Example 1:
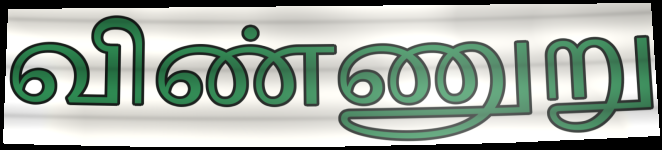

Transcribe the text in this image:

விண்ணுறு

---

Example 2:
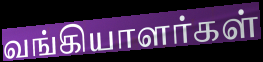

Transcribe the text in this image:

வங்கியாளர்கள்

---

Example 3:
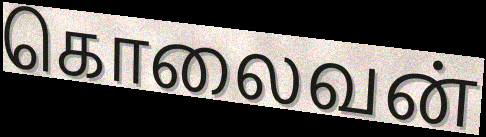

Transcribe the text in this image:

கொலைவன்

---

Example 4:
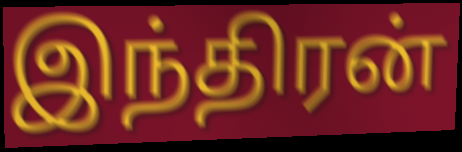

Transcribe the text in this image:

இந்திரன்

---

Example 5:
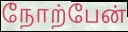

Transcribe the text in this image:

நோற்பேன்